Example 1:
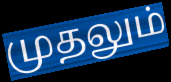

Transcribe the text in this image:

முதலும்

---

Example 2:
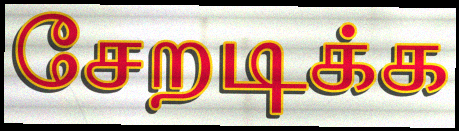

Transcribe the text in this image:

சேறடிக்க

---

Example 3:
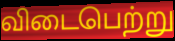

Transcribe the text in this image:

விடைபெற்று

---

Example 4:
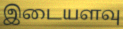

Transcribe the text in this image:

இடையளவு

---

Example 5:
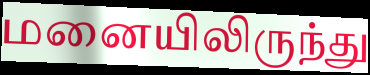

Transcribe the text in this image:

மனையிலிருந்து